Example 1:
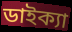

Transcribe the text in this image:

ডাইক্যা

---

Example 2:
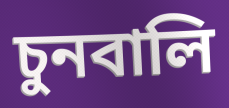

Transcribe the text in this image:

চুনবালি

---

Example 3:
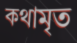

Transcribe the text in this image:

কথামৃত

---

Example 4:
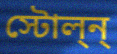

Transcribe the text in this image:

স্টোল্ন্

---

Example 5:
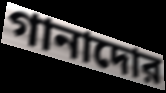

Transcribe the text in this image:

গানাদোর